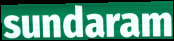
sundaram